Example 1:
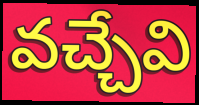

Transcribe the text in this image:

వచ్చేవి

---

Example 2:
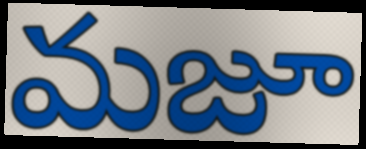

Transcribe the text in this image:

మజూ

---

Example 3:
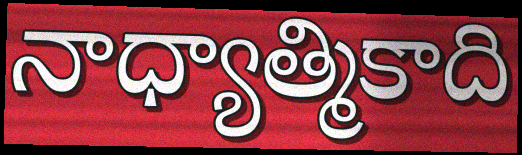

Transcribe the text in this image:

నాధ్యాత్మికాది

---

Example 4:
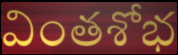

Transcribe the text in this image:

వింతశోభ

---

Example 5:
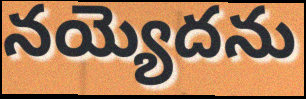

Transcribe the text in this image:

నయ్యెదను